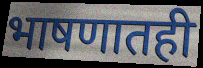
भाषणातही